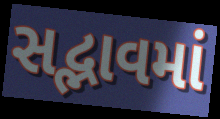
સદ્ભાવમાં